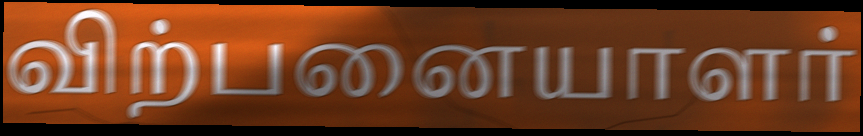
விற்பனையாளர்